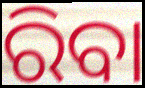
ରିବା